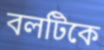
বলটিকে